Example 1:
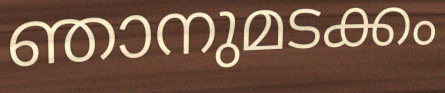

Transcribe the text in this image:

ഞാനുമടക്കം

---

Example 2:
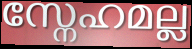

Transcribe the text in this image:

സ്നേഹമല്ല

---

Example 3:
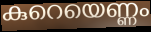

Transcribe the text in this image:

കുറെയെണ്ണം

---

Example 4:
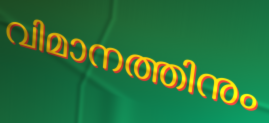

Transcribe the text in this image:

വിമാനത്തിനും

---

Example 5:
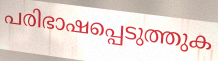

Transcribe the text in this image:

പരിഭാഷപ്പെടുത്തുക